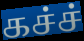
கச்ச்